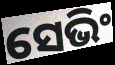
ସେଭିଂ